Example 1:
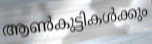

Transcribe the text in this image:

ആൺകുട്ടികൾക്കും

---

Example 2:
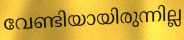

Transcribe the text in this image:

വേണ്ടിയായിരുന്നില്ല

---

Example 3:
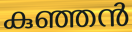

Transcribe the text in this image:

കുഞ്ഞൻ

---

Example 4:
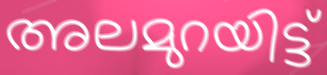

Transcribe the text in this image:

അലമുറയിട്ട്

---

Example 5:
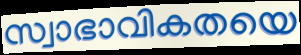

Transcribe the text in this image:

സ്വാഭാവികതയെ